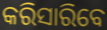
କରିସାରିବେ